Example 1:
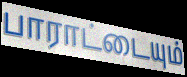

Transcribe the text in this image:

பாராட்டையும்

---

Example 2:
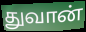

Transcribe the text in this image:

துவான்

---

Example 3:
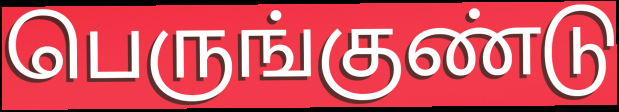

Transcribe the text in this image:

பெருங்குண்டு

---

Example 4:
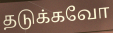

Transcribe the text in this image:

தடுக்கவோ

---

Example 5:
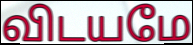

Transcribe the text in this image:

விடயமே